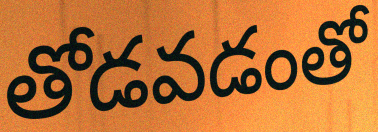
తోడవడంతో